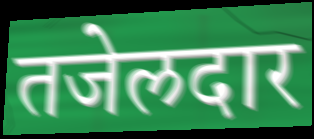
तजेलदार